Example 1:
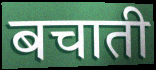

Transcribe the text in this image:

बचाती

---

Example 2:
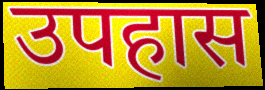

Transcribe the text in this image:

उपहास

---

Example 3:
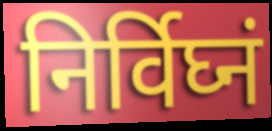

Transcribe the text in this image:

निर्विघ्नं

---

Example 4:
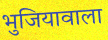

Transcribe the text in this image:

भुजियावाला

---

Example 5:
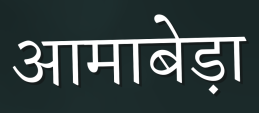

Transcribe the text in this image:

आमाबेड़ा